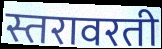
स्तरावरती